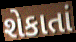
શેકાતાં